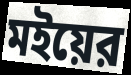
মইয়ের